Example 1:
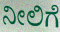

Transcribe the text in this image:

ನೀಲಿಗೆ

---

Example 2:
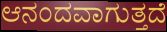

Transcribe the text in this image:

ಆನಂದವಾಗುತ್ತದೆ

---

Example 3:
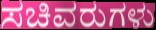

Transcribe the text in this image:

ಸಚಿವರುಗಳು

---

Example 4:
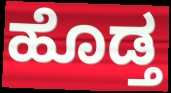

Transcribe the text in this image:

ಹೊಡ್ತ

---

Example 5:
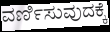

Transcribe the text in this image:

ವರ್ಣಿಸುವುದಕ್ಕೆ